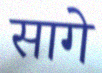
सागे